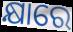
କ୍ଷାରେ